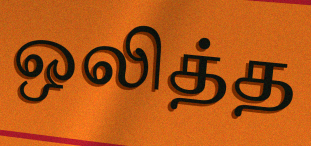
ஒலித்த